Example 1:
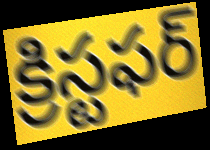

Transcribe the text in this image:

క్రిస్టఫర్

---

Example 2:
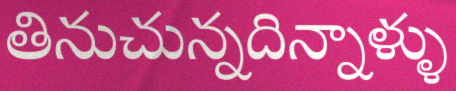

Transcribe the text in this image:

తినుచున్నదిన్నాళ్ళు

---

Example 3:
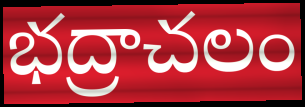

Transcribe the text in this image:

భద్రాచలం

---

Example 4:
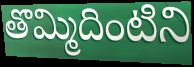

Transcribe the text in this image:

తొమ్మిదింటిని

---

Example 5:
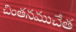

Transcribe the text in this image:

చింతనముచేత